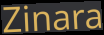
Zinara